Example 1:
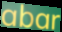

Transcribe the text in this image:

abar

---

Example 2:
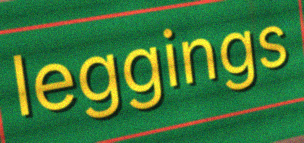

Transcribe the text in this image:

leggings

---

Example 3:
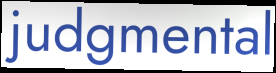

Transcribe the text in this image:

judgmental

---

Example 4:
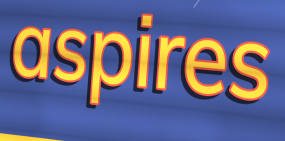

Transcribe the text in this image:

aspires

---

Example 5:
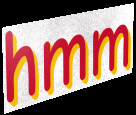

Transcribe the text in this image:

hmm